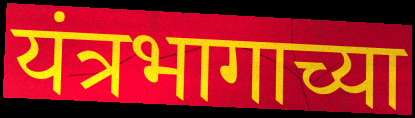
यंत्रभागाच्या